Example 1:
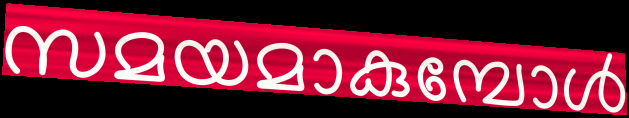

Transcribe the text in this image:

സമയമാകുമ്പോൾ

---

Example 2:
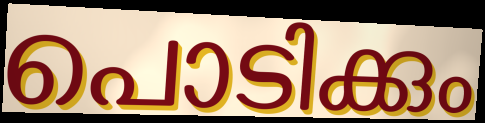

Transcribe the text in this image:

പൊടിക്കും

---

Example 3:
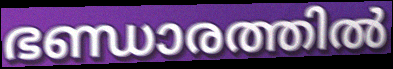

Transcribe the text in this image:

ഭണ്ഡാരത്തിൽ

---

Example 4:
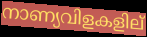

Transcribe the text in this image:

നാണ്യവിളകളില്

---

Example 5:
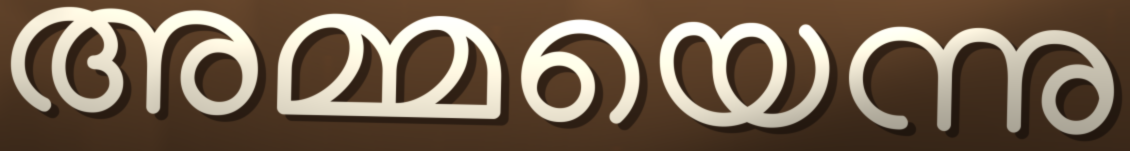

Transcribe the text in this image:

അമ്മയെന്നു